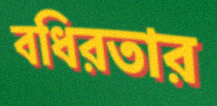
বধিরতার